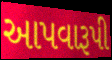
આપવારૂપી